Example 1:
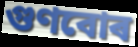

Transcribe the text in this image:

গুণবোৰ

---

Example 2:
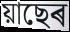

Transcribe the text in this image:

য়াছেৰ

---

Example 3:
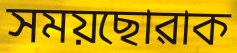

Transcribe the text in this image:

সময়ছোৱাক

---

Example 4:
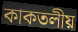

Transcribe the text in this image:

কাকতলীয়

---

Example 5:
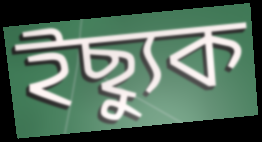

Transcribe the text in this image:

ইছ্যুক